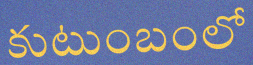
కుటుంబంలో